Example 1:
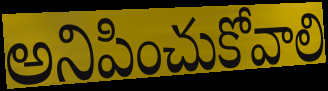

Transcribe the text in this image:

అనిపించుకోవాలి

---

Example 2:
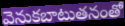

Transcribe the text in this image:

వెనుకబాటుతనంతో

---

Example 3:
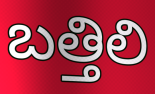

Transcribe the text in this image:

బత్తిలి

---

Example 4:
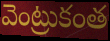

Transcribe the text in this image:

వెంట్రుకంత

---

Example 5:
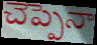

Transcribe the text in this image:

చెప్పెనా